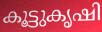
കൂട്ടുകൃഷി